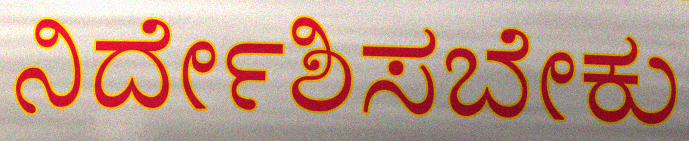
ನಿರ್ದೇಶಿಸಬೇಕು